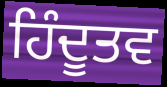
ਹਿੰਦੂਤਵ